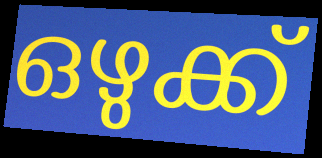
ഒഴുക്ക്